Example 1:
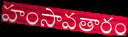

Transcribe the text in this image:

హంసావతారం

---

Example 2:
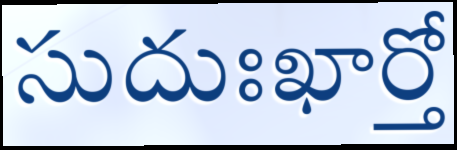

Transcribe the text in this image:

సుదుఃఖార్తో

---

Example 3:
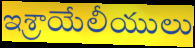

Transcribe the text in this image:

ఇశ్రాయేలీయులు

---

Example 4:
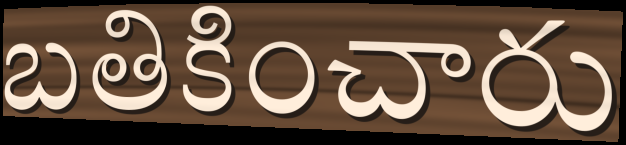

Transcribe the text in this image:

బతికించారు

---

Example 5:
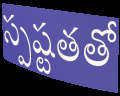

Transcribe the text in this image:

స్పష్టతతో